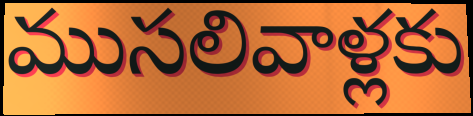
ముసలివాళ్లకు